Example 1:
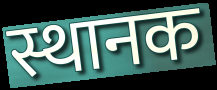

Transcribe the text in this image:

स्थानक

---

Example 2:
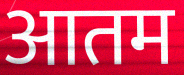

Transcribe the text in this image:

आतम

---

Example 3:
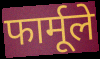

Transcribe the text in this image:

फार्मूले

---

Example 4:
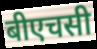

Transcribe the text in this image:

बीएचसी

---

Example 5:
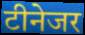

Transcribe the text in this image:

टीनेजर